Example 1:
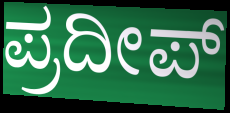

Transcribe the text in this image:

ಪ್ರದೀಪ್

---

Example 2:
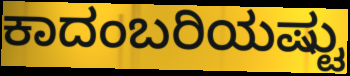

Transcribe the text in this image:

ಕಾದಂಬರಿಯಷ್ಟು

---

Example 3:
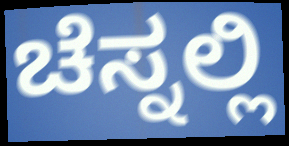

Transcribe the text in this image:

ಚೆಸ್ನಲ್ಲಿ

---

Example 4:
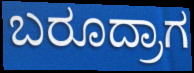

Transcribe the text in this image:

ಬರೂದ್ರಾಗ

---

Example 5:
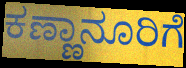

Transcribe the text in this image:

ಕಣ್ಣಾನೂರಿಗೆ